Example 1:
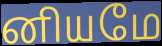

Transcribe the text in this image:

னியமே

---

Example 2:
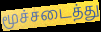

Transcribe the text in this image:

மூச்சடைத்து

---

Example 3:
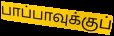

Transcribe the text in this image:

பாப்பாவுக்குப்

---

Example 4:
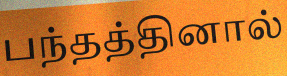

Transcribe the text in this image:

பந்தத்தினால்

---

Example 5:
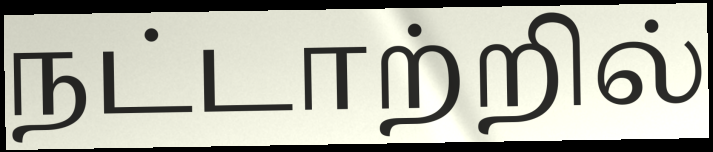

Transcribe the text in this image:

நட்டாற்றில்